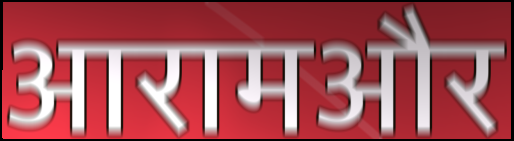
आरामऔर